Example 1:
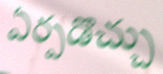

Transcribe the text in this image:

ఏర్పడొచ్చు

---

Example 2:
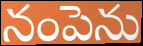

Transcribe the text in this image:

నంపెను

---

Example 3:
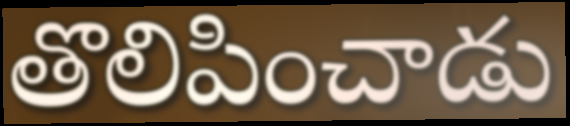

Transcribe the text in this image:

తొలిపించాడు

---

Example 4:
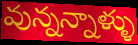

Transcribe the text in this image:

వున్నన్నాళ్ళు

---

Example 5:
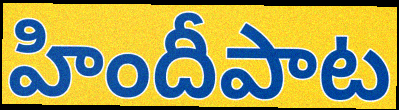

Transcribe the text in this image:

హిందీపాట